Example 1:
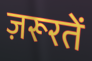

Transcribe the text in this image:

ज़रूरतें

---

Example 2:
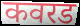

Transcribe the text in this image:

कवरड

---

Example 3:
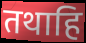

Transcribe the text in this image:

तथाहि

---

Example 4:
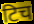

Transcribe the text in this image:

टिच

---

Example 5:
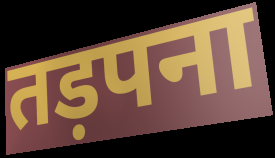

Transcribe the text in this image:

तड़पना